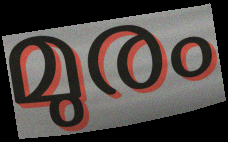
മുരം